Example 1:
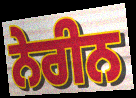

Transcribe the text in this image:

ਨੇਰੀਨ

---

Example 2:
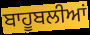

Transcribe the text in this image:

ਬਾਹੂਬਲੀਆਂ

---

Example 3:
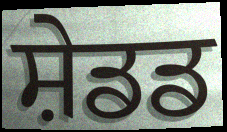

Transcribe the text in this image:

ਸ਼ੇਡਡ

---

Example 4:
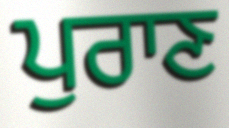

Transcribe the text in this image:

ਪੁਰਾਣ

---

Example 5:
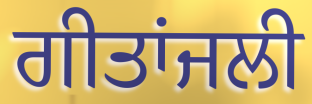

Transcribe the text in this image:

ਗੀਤਾਂਜਲੀ